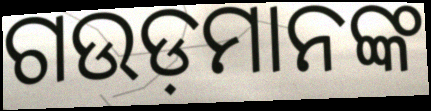
ଗଉଡ଼ମାନଙ୍କ